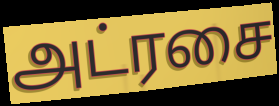
அட்ரசை